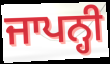
ਜਾਪਨ੍ਹੀ